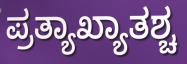
ಪ್ರತ್ಯಾಖ್ಯಾತಶ್ಚ